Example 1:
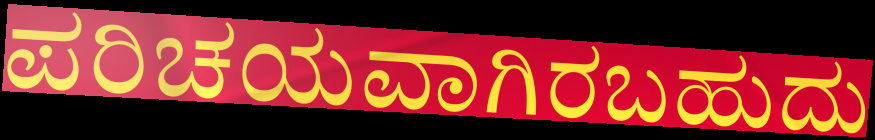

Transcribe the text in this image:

ಪರಿಚಯವಾಗಿರಬಹುದು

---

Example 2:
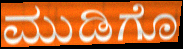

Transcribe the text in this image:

ಮುಡಿಗೊ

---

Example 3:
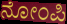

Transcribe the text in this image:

ನೋಂಪಿ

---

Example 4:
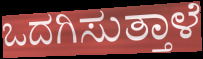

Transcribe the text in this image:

ಒದಗಿಸುತ್ತಾಳೆ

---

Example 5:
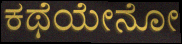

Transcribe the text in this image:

ಕಥೆಯೇನೋ